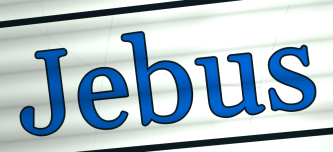
Jebus